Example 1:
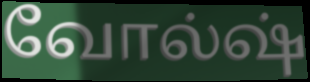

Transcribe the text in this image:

வோல்ஷ்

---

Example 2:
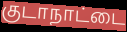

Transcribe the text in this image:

குடாநாட்டை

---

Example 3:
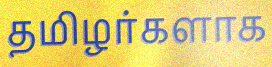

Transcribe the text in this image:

தமிழர்களாக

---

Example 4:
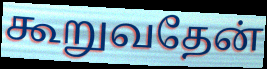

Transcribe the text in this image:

கூறுவதேன்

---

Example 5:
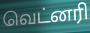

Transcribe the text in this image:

வெட்னரி